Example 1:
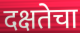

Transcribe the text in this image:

दक्षतेचा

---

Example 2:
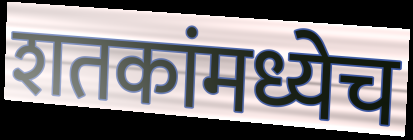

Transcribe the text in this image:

शतकांमध्येच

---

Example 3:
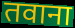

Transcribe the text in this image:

तवाना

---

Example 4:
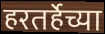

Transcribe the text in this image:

हरतर्हेच्या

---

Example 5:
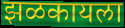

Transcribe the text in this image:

झळकायला